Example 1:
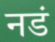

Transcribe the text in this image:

नडं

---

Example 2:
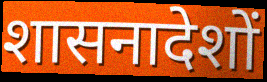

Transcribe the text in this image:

शासनादेशों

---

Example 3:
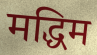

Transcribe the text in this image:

मद्धिम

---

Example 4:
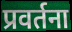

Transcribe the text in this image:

प्रवर्तना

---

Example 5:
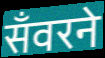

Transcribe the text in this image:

सँवरने